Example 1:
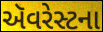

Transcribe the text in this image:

ઍૅવરેસ્ટના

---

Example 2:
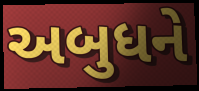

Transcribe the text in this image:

અબુધને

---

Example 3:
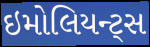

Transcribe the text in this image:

ઇમોલિયન્ટ્સ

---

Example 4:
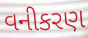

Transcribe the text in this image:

વનીકરણ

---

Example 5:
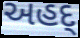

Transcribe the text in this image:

અહદ્